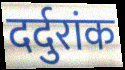
दर्दुरांक